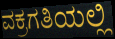
ವಕ್ರಗತಿಯಲ್ಲಿ